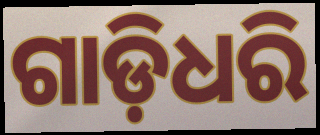
ଗାଡ଼ିଧରି